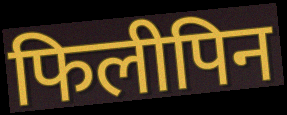
फिलीपिन